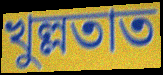
খুল্লতাত